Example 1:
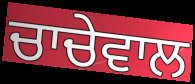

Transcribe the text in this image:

ਚਾਚੇਵਾਲ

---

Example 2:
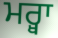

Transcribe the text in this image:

ਮਰ੍ਥਾ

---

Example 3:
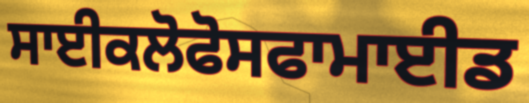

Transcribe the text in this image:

ਸਾਈਕਲੋਫੋਸਫਾਮਾਈਡ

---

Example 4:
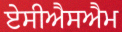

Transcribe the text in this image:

ਏਸੀਐਸਐਮ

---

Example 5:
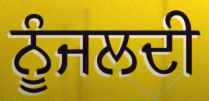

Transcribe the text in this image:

ਨੂੰਜਲਦੀ